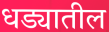
धड्यातील